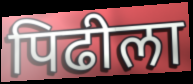
पिढीला